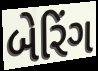
બેરિંગ